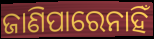
ଜାଣିପାରେନାହିଁ